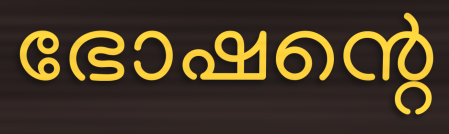
ഭോഷന്റെ